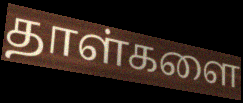
தாள்களை